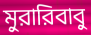
মুরারিবাবু